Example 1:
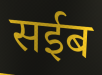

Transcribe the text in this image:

सईब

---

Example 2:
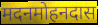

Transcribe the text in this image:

मदनमोहनदास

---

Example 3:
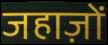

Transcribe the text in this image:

जहाज़ों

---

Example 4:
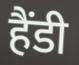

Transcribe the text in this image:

हैंडी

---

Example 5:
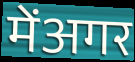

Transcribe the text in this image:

मेंअगर